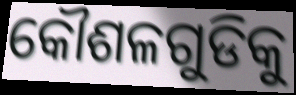
କୌଶଳଗୁଡିକୁ